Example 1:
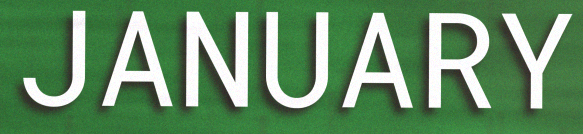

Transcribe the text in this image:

JANUARY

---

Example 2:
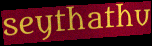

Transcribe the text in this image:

seythathu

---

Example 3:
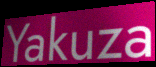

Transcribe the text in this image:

Yakuza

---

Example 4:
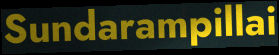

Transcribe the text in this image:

Sundarampillai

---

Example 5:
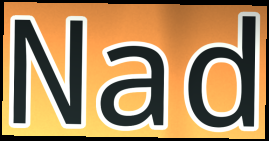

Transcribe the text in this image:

Nad